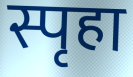
स्पृहा